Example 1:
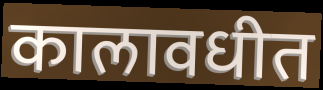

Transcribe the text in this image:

कालावधीत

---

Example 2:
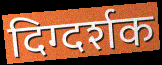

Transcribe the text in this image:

दिग्दर्शक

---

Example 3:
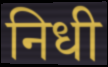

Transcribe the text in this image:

निधी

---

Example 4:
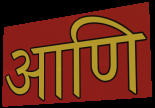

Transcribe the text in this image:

आणि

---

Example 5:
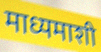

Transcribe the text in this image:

माध्यमाशी